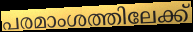
പരമാംശത്തിലേക്ക്